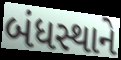
બંધસ્થાને